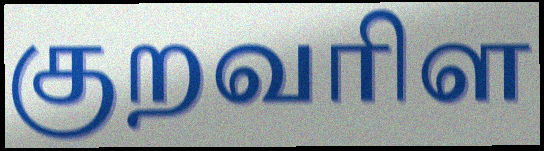
குறவரிள